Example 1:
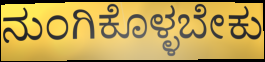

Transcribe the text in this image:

ನುಂಗಿಕೊಳ್ಳಬೇಕು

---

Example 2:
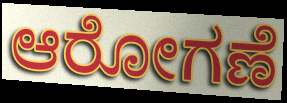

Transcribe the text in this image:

ಆರೋಗಣೆ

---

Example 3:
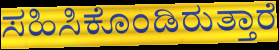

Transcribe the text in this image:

ಸಹಿಸಿಕೊಂಡಿರುತ್ತಾರೆ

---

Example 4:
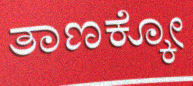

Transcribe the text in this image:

ತಾಣಕ್ಕೋ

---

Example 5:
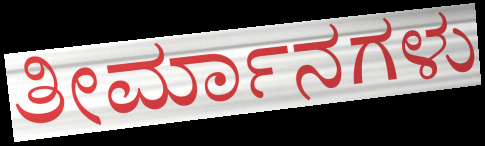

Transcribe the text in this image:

ತೀರ್ಮಾನಗಳು